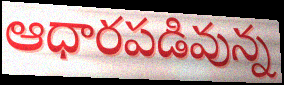
ఆధారపడివున్న